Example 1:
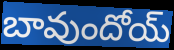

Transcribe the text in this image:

బావుందోయ్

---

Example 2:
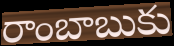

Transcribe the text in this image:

రాంబాబుకు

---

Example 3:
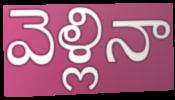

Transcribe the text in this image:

వెళ్లినా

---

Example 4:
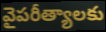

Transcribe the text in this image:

వైపరీత్యాలకు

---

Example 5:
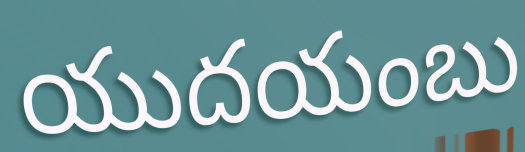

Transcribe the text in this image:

యుదయంబు